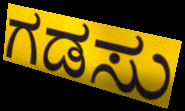
ಗಡಸು